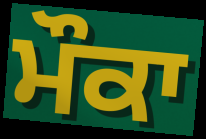
ਮੌਕਾ